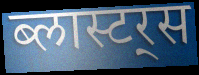
ब्लास्टर्स